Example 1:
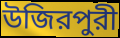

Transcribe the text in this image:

উজিরপুরী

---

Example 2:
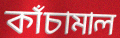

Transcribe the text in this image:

কাঁচামাল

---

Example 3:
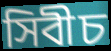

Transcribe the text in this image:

সিবীচ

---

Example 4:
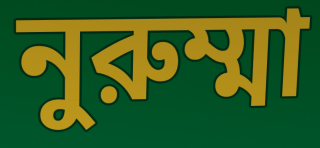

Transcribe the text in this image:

নুরুম্মা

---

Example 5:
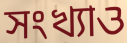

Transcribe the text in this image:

সংখ্যাও